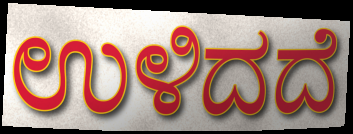
ಉಳಿದದೆ